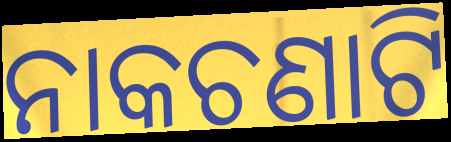
ନାକଚଣାଟି